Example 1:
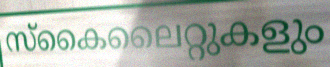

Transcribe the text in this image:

സ്കൈലൈറ്റുകളും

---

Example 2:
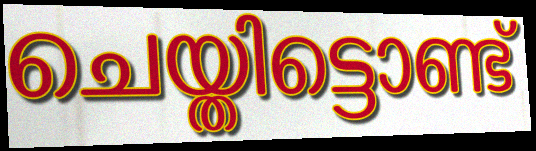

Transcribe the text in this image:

ചെയ്തിട്ടൊണ്ട്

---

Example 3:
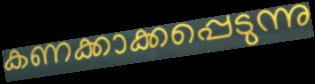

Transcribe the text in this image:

കണക്കാക്കപ്പെടുന്നു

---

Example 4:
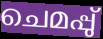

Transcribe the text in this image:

ചെമപ്പു്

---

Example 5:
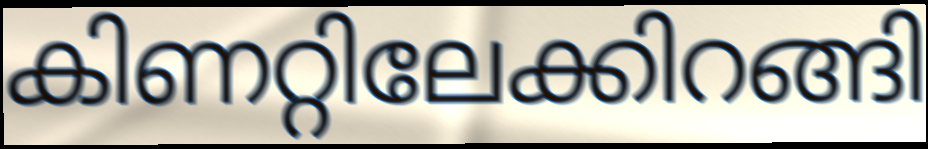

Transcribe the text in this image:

കിണറ്റിലേക്കിറങ്ങി